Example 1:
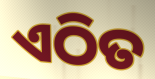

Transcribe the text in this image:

ଏଠିତ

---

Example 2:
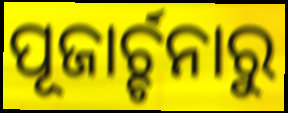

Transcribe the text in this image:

ପୂଜାର୍ଚ୍ଚନାରୁ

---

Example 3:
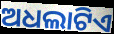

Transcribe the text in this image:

ଅଧଲାଟିଏ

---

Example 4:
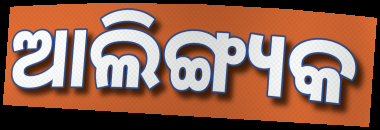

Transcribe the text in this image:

ଆଲିଙ୍ଗ୍ୟକ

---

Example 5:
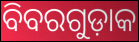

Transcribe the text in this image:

ବିବରଗୁଡ଼ାକ